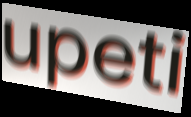
upeti